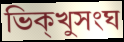
ভিক্খুসংঘ